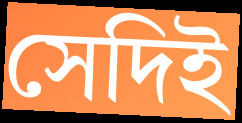
সেদিই